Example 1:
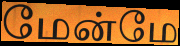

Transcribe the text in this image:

மேன்மே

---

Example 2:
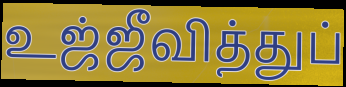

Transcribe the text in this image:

உஜ்ஜீவித்துப்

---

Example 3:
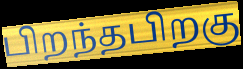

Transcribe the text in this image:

பிறந்தபிறகு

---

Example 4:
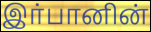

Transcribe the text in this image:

இர்பானின்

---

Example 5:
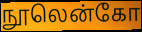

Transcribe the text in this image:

நூலென்கோ